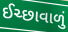
ઈચ્છાવાળું